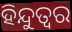
ହିନ୍ଦୁତ୍ବର